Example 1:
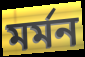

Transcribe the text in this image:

মর্মন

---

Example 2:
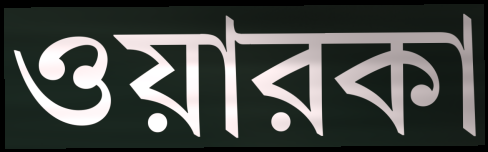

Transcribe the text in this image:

ওয়ারকা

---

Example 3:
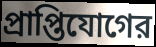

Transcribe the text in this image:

প্রাপ্তিযোগের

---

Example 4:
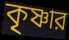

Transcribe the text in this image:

কৃষ্ণার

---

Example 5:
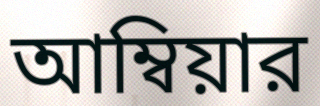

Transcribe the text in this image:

আম্বিয়ার